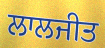
ਲਾਲਜੀਤ